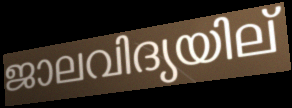
ജാലവിദ്യയില്